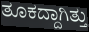
ತೂಕದ್ದಾಗಿತ್ತು